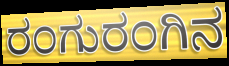
ರಂಗುರಂಗಿನ